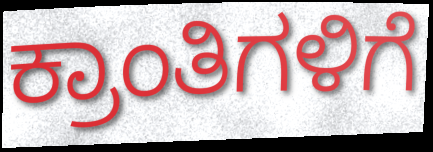
ಕ್ರಾಂತಿಗಳಿಗೆ